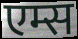
एम्स